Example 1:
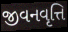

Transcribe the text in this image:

જીવનવૃત્તિ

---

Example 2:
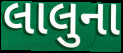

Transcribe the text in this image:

લાલુના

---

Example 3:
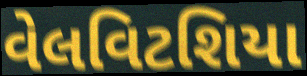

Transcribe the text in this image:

વેલવિટશિયા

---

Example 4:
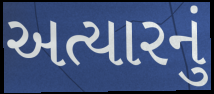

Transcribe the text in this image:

અત્યારનું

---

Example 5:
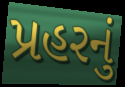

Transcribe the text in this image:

પ્રહરનું